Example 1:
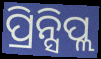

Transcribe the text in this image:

ପ୍ରିନ୍ସିପ୍ଲ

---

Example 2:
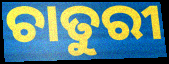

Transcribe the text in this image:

ଚାତୁରୀ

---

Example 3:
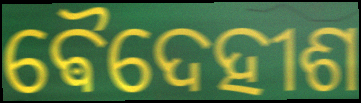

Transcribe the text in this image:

ଵୈଦେହୀଶ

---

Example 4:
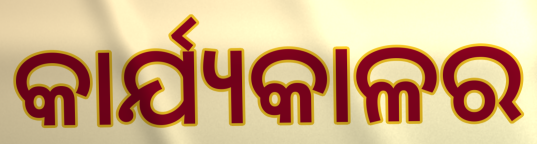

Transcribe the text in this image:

କାର୍ଯ୍ୟକାଳର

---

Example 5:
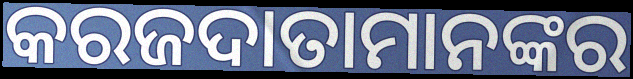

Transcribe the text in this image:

କରଜଦାତାମାନଙ୍କର